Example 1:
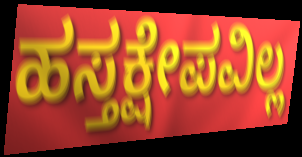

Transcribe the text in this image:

ಹಸ್ತಕ್ಷೇಪವಿಲ್ಲ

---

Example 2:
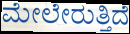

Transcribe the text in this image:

ಮೇಲೇರುತ್ತಿದೆ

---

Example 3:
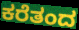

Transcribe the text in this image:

ಕರೆತಂದ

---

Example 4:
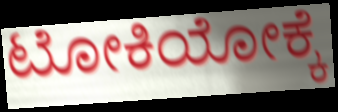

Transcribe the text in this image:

ಟೋಕಿಯೋಕ್ಕೆ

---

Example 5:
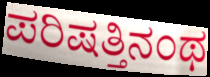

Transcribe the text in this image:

ಪರಿಷತ್ತಿನಂಥ